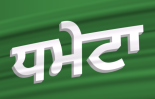
ਧਮੇਟਾ